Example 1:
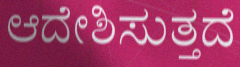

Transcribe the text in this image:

ಆದೇಶಿಸುತ್ತದೆ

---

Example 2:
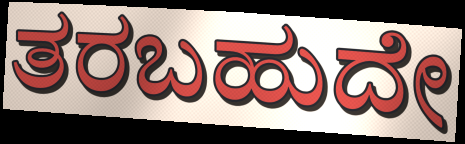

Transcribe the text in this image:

ತರಬಹುದೇ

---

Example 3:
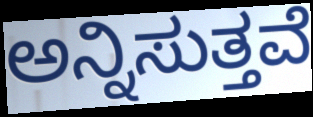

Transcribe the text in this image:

ಅನ್ನಿಸುತ್ತವೆ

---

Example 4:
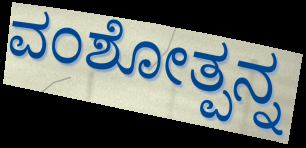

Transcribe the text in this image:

ವಂಶೋತ್ಪನ್ನ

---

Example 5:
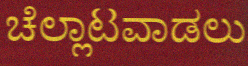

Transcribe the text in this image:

ಚೆಲ್ಲಾಟವಾಡಲು